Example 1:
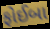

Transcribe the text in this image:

ફોઈબા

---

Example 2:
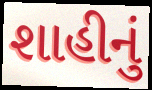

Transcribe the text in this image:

શાહીનું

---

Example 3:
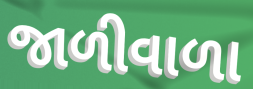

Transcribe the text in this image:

જાળીવાળા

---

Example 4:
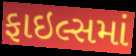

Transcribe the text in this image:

ફાઇલ્સમાં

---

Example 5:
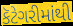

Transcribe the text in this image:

કૅટેગરીમાંથી